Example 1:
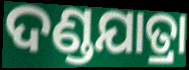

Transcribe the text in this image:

ଦଣ୍ଡଯାତ୍ରା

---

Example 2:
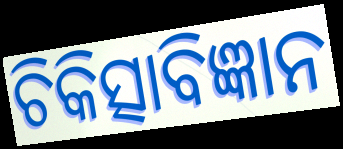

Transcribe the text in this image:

ଚିକିତ୍ସାବିଜ୍ଞାନ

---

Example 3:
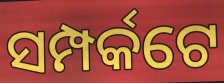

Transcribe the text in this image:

ସମ୍ପର୍କଟେ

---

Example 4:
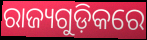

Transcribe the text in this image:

ରାଜ୍ୟଗୁଡ଼ିକରେ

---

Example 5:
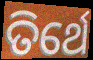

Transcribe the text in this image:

ତିର୍ଥେ